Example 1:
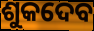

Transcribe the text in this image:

ଶୁକଦେବ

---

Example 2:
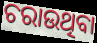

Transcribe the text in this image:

ଚରାଉଥିବା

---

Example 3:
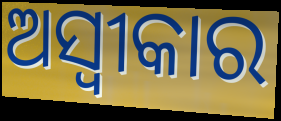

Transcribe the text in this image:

ଅସ୍ୱୀକାର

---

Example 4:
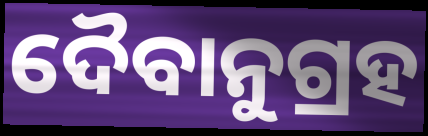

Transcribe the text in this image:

ଦୈବାନୁଗ୍ରହ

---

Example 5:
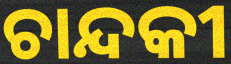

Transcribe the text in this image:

ଚାନ୍ଦକୀ